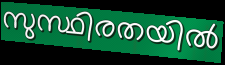
സുസ്ഥിരതയിൽ